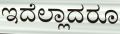
ಇದೆಲ್ಲಾದರೂ